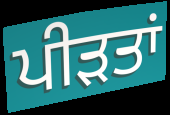
ਪੀਡ਼ਤਾਂ